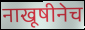
नाखूषीनेच